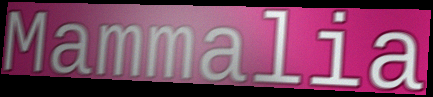
Mammalia